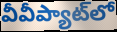
వీవీప్యాట్‌లో